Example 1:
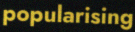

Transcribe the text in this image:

popularising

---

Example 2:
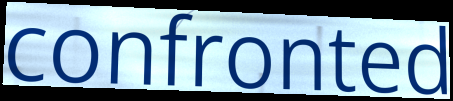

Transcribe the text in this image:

confronted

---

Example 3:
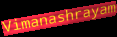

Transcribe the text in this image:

Vimanashrayam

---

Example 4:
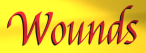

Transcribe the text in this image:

Wounds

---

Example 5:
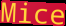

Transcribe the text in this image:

Mice